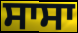
ਸਾਸਾ